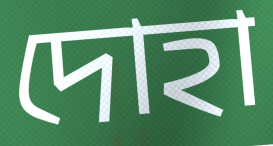
দোহা